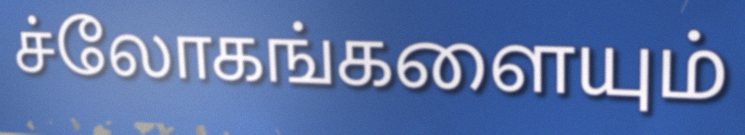
ச்லோகங்களையும்